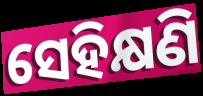
ସେହିକ୍ଷଣି